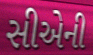
સીએની